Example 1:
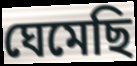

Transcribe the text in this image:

ঘেমেছি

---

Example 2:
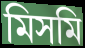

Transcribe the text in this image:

মিসমি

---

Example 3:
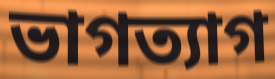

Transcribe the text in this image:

ভাগত্যাগ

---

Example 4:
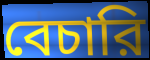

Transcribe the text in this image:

বেচারি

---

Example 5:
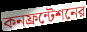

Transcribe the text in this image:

কনফ্রন্টেশনের